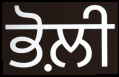
ਭੋਲ਼ੀ